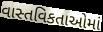
વાસ્તવિકતાઓમાં